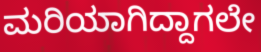
ಮರಿಯಾಗಿದ್ದಾಗಲೇ